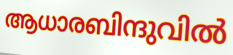
ആധാരബിന്ദുവിൽ